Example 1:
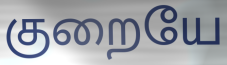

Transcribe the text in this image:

குறையே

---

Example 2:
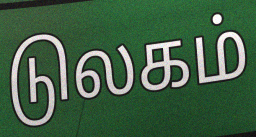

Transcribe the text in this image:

டுலகம்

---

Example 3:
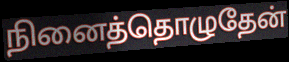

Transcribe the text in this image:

நினைத்தொழுதேன்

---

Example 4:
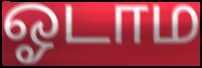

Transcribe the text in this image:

ஓடாம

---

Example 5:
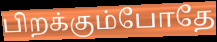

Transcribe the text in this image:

பிறக்கும்போதே